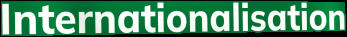
Internationalisation